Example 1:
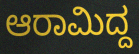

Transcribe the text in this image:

ಆರಾಮಿದ್ದ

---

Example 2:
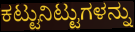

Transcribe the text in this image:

ಕಟ್ಟುನಿಟ್ಟುಗಳನ್ನು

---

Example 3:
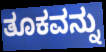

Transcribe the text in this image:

ತೂಕವನ್ನು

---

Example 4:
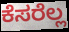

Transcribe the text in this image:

ಕೆಸರೆಲ್ಲ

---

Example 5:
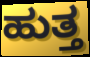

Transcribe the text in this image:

ಹುತ್ತ